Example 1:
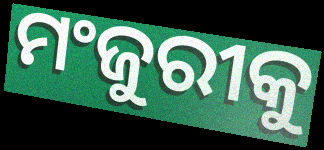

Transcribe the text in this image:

ମଂଜୁରୀକୁ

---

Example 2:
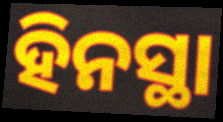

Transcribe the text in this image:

ହିନସ୍ଥା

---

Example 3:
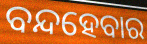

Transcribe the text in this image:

ବନ୍ଦହେବାର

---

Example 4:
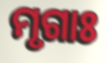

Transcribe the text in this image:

ମୃଗାଃ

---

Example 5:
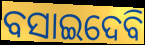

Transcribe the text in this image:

ବସାଇଦେବି